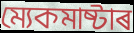
ম্যেকমাষ্টাৰ